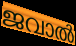
ജവാൽ